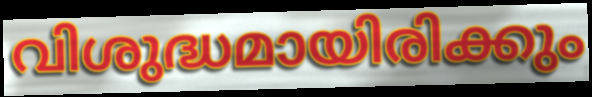
വിശുദ്ധമായിരിക്കും